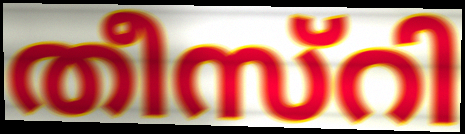
തീസ്റി